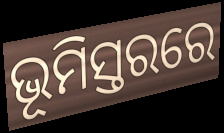
ଭୂମିସ୍ତରରେ